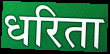
धरिता